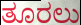
ತೂರಲು